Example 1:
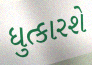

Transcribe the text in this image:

ધુત્કારશે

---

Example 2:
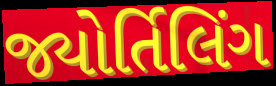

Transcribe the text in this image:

જ્યોર્તિલિંગ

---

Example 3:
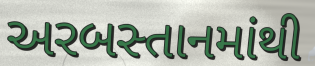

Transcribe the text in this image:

અરબસ્તાનમાંથી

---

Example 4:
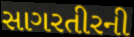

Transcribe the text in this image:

સાગરતીરની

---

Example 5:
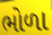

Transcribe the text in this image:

ભોળા